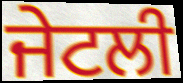
ਜੇਟਲੀ